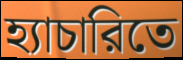
হ্যাচারিতে